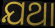
ଯଥା